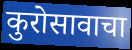
कुरोसावाचा